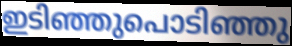
ഇടിഞ്ഞുപൊടിഞ്ഞു